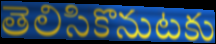
తెలిసికొనుటకు